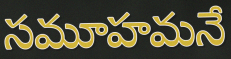
సమూహమనే